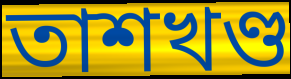
তাশখণ্ড